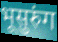
भूसुरुंग